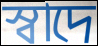
স্বাদে